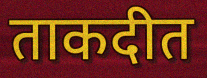
ताकदीत